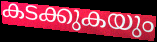
കടക്കുകയും